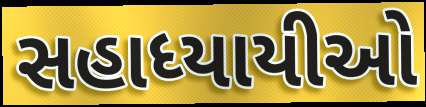
સહાધ્યાયીઓ